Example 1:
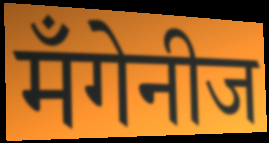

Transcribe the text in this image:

मँगेनीज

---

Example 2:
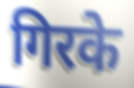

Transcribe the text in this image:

गिरके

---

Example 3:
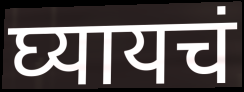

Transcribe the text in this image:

घ्यायचं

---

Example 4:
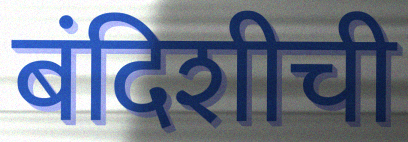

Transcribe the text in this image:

बंदिशीची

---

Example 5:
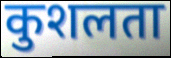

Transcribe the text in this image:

कुशलता